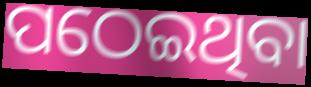
ପଠେଇଥିବା